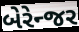
બેરેન્જર